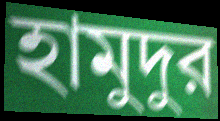
হামুদুর